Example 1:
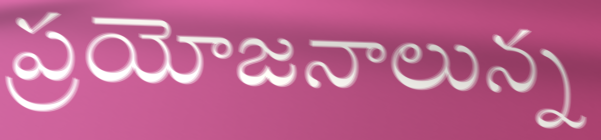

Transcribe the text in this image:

ప్రయోజనాలున్న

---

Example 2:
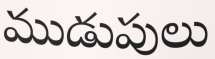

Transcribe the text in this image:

ముడుపులు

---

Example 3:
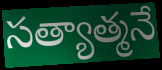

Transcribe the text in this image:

సత్యాత్మనే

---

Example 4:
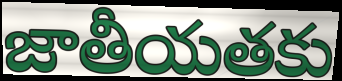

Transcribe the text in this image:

జాతీయతకు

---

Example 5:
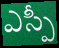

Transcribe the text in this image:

ఎస్పీ